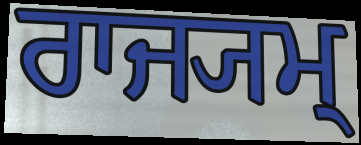
ਰਾਜ੍ਯਮ੍